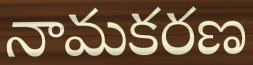
నామకరణ